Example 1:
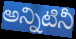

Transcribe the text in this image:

అన్నిటినీ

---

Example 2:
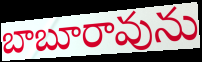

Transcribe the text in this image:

బాబూరావును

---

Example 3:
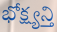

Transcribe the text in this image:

భోక్ష్యన్తి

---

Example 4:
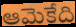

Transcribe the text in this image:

ఆమెకేది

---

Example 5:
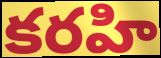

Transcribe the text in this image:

కరహి